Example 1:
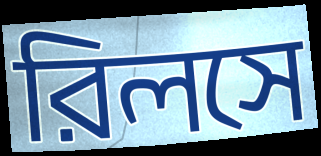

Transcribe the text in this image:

রিলসে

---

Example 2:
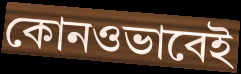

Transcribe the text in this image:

কোনওভাবেই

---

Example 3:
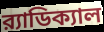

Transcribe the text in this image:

র‍্যাডিক্যাল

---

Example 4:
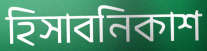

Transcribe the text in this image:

হিসাবনিকাশ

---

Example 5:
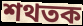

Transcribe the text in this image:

শথতক